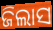
ଜିଲାସ